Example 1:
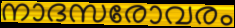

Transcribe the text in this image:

നാദസരോവരം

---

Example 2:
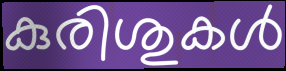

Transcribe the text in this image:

കുരിശുകൾ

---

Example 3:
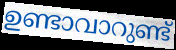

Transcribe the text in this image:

ഉണ്ടാവാറുണ്ട്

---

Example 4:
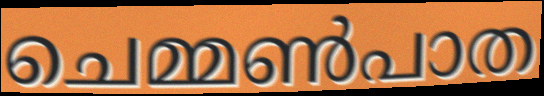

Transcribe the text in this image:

ചെമ്മൺപാത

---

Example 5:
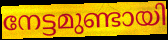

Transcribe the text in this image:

നേട്ടമുണ്ടായി